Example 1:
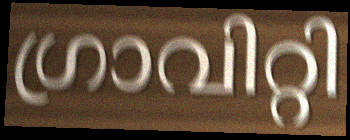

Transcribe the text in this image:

ഗ്രാവിറ്റി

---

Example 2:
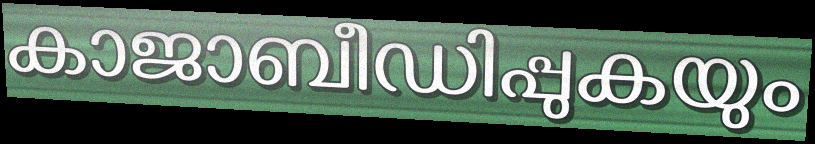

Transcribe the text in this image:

കാജാബീഡിപ്പുകയും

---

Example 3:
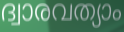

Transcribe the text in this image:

ദ്വാരവത്യാം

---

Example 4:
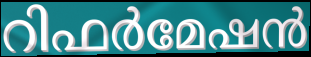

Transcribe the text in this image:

റിഫർമേഷൻ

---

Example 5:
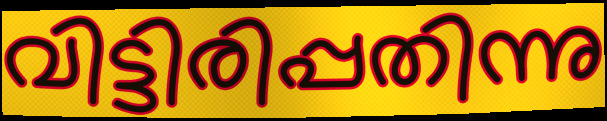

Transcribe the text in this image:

വിട്ടിരിപ്പതിന്നു